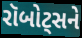
રૉબોટ્સને